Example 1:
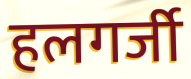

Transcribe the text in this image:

हलगर्जी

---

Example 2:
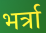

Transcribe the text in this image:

भर्त्रा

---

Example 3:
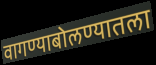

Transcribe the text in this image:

वागण्याबोलण्यातला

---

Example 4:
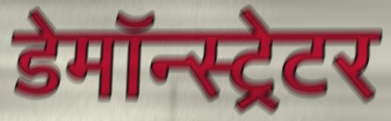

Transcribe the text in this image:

डेमॉन्स्ट्रेटर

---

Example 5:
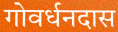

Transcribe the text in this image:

गोवर्धनदास